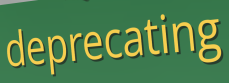
deprecating